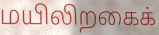
மயிலிறகைக்